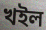
খইল